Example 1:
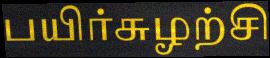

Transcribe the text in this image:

பயிர்சுழற்சி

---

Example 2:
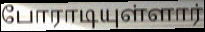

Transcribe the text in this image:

போராடியுள்ளார்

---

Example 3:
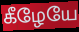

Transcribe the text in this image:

கீழேயே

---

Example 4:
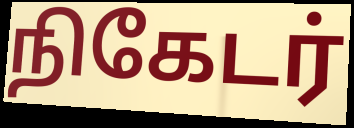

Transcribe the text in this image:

நிகேடர்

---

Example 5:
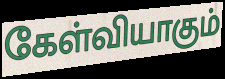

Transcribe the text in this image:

கேள்வியாகும்